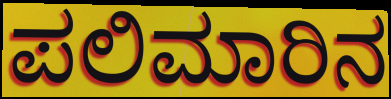
ಪಲಿಮಾರಿನ